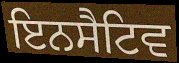
ਇਨਸੈਟਿਵ